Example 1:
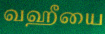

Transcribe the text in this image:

வஹீயை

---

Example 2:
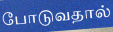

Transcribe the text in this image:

போடுவதால்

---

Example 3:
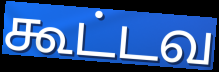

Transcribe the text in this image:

கூட்டவ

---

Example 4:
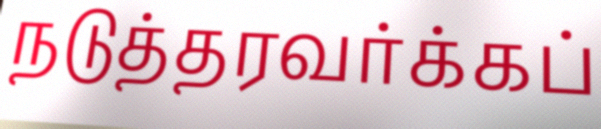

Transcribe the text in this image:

நடுத்தரவர்க்கப்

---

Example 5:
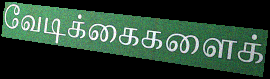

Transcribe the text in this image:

வேடிக்கைகளைக்